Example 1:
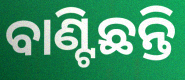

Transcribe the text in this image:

ବାଣ୍ଟିଛନ୍ତି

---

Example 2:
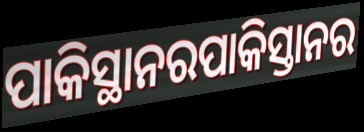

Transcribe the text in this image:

ପାକିସ୍ଥାନରପାକିସ୍ତାନର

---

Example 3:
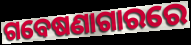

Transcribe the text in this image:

ଗବେଷଣାଗାରରେ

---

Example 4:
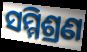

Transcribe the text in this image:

ସମ୍ମିଶ୍ରଣ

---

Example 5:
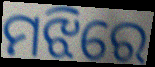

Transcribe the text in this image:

ମଝିରେ